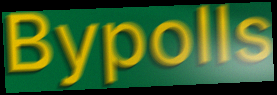
Bypolls